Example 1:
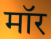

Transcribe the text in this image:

मॉर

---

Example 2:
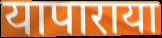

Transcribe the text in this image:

यापाराया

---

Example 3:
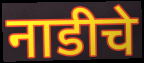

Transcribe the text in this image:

नाडीचे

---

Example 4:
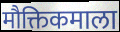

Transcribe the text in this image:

मौक्तिकमाला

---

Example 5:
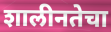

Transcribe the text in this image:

शालीनतेचा